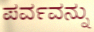
ಪರ್ವವನ್ನು